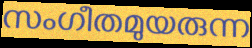
സംഗീതമുയരുന്ന